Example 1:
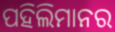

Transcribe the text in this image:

ପହିଲିମାନର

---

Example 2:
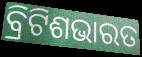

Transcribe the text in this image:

ବ୍ରିଟିଶଭାରତ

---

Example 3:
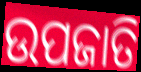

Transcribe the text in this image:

ଉପଜାତି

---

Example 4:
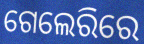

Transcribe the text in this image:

ଗେଲେରିରେ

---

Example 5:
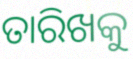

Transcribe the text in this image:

ତାରିଖକୁ